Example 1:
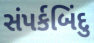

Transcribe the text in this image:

સંપર્કબિંદુ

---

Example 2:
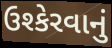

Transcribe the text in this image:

ઉશ્કેરવાનું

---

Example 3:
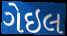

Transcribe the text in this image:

ગેઇલ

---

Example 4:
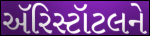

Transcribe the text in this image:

ઍરિસ્ટૉટલને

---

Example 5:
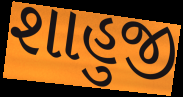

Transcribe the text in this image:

શાહુજી